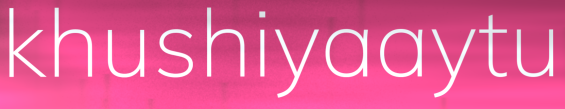
khushiyaaytu